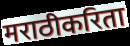
मराठीकरिता